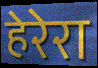
हेरेरा